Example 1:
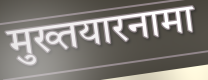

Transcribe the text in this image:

मुख्तयारनामा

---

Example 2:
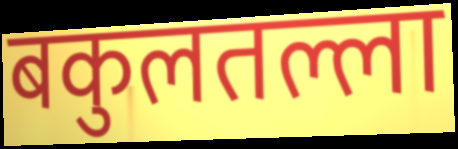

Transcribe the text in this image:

बकुलतल्ला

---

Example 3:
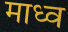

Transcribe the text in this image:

माध्व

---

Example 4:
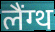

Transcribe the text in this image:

लैंग्थ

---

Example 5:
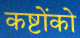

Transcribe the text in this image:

कष्टोंको